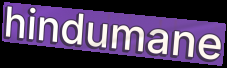
hindumane